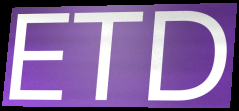
ETD